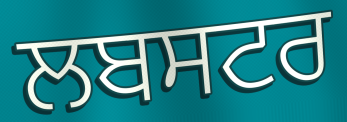
ਲਬਸਟਰ